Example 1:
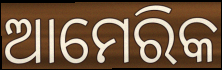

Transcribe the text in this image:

ଆମେରିକ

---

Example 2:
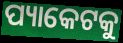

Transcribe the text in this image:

ପ୍ୟାକେଟକୁ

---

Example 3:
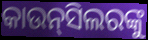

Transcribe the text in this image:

କାଉନ୍‌ସିଲରଙ୍କୁ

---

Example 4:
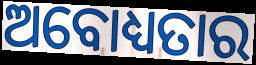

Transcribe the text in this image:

ଅବୋଧ୍ୟତାର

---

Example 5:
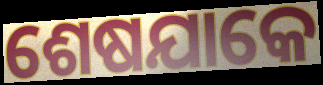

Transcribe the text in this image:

ଶେଷଯାକେ